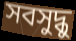
সবসুদ্ধু